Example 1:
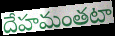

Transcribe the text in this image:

దేహమంతటా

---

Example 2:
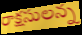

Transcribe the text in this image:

రాక్షసులన్న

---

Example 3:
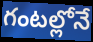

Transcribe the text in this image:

గంటల్లోనే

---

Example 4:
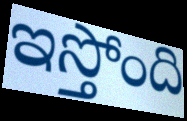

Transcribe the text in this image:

ఇస్తోంది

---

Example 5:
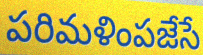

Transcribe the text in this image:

పరిమళింపజేసే